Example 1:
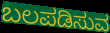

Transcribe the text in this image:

ಬಲಪಡಿಸುವ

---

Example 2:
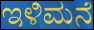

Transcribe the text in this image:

ಇಳಿಮನೆ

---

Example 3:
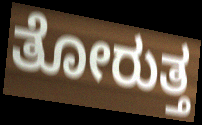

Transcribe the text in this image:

ತೋರುತ್ತ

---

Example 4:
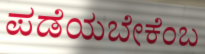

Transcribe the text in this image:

ಪಡೆಯಬೇಕೆಂಬ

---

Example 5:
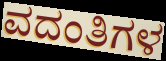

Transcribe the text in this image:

ವದಂತಿಗಳ